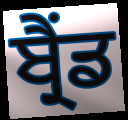
ਬ੍ਰੈਂਡ